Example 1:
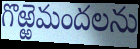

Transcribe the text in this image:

గొఱ్ఱెమందలను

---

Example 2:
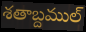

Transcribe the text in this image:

శతాబ్దముల్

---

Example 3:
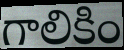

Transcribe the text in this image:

గాలికిం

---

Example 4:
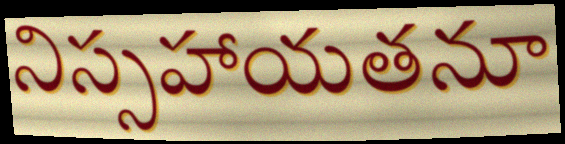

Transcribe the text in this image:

నిస్సహాయతనూ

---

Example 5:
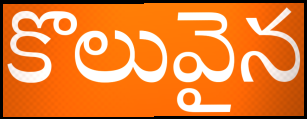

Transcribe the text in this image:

కొలువైన